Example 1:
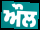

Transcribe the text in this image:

ਔਲ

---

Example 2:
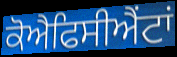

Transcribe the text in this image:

ਕੋਐਫਿਸੀਐਂਟਾਂ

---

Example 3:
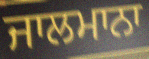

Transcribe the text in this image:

ਜਾਲਮਾਨਾ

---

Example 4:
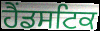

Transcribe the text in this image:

ਹੈਂਡਸਟਿਕ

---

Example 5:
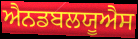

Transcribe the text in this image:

ਐਨਡਬਲਯੂਐਸ